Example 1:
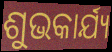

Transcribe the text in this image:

ଶୁଭକାର୍ଯ୍ୟ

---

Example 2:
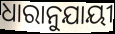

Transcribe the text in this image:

ଧାରାନୁଯାୟୀ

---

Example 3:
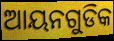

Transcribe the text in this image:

ଆୟନଗୁଡିକ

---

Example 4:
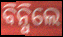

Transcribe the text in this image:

ବିନ୍ଧିଲେ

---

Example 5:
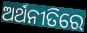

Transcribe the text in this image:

ଅର୍ଥନୀତିରେ